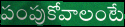
పంపుకోవాలంటే